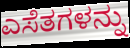
ಎಸೆತಗಳನ್ನು